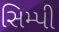
સિમ્પી